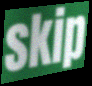
skip